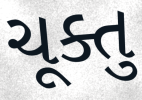
ચૂક્તુ